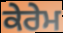
ਕੇਰੇਮ